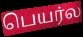
பெயர்ல